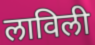
लाविली